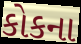
કોકના